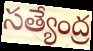
సత్యేంద్ర